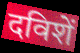
दविशें